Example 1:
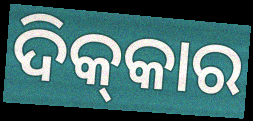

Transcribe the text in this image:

ଦିକ୍‌କାର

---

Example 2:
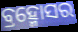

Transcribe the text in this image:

ବ୍ରହ୍ମୋସର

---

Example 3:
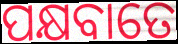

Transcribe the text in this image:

ପକ୍ଷବାତେ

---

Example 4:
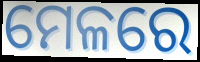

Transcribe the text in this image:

ମେଳରେ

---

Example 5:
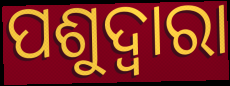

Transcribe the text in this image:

ପଶୁଦ୍ୱାରା